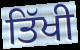
ਤਿੱਖੀ